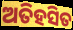
ଅତିହସିତ